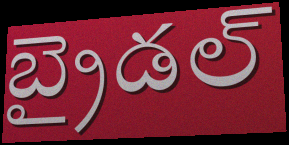
బ్రైడల్